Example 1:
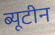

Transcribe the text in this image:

ब्यूटीन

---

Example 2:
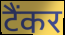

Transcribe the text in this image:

टैंकर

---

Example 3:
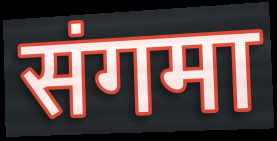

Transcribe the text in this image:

संगमा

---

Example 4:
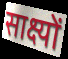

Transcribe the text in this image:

साक्ष्यों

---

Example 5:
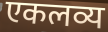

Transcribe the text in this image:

एकलव्य